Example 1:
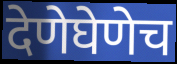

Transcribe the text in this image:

देणेघेणेच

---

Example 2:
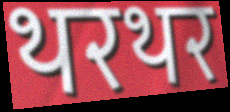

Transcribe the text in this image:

थरथर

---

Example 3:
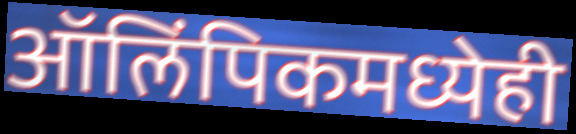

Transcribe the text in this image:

ऑलिंपिकमध्येही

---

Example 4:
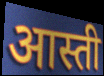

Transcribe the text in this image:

आस्ती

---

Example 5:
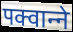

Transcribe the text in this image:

पक्वान्ने